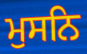
ਮੁਸਨਿ